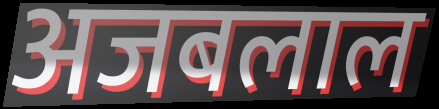
अजबलाल